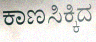
ಕಾಣಸಿಕ್ಕಿದ